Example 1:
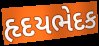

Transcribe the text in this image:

હૃદયભેદક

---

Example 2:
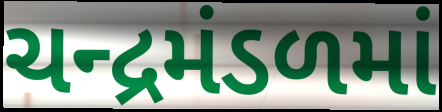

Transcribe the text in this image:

ચન્દ્રમંડળમાં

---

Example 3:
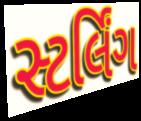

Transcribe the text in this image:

સ્ટર્લિંગ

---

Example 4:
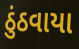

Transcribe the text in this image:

ઠુંઠવાયા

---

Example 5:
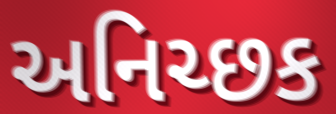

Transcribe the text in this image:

અનિચ્છક